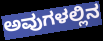
ಅವುಗಳಲ್ಲಿನ